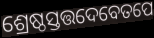
ଶ୍ରେଷ୍ଠସ୍ତତ୍ତଦେବେତପେ